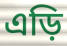
এড়ি